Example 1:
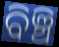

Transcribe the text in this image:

ବିଞ୍ଚି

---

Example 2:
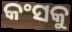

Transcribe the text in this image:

କଂସକୁ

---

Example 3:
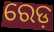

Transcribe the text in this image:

ରେଡ଼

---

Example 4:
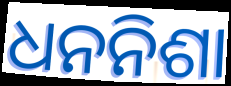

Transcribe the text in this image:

ଧନନିଶା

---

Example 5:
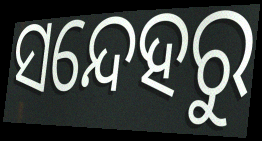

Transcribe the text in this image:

ସନ୍ଦେହରୁ